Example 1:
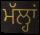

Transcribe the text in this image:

ਮੱਲ੍ਹਾਂ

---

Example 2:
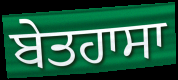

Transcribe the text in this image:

ਬੇਤਹਾਸਾ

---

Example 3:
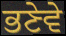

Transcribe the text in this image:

ਭਣੇਵੇ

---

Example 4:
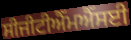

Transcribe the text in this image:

ਸੀਜੀਟੀਐੱਮਐੱਸਈ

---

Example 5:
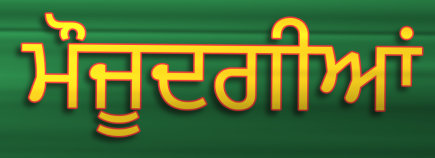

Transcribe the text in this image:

ਮੌਜੂਦਗੀਆਂ